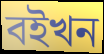
বইখন